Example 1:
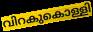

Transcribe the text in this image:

വിറകുകൊള്ളി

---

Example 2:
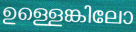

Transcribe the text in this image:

ഉള്ളെങ്കിലോ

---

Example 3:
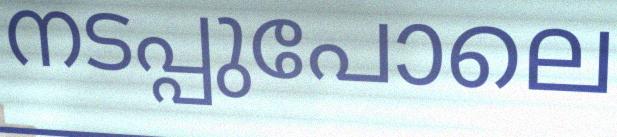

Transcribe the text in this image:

നടപ്പുപോലെ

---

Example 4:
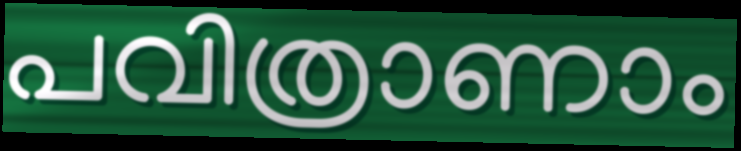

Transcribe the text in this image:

പവിത്രാണാം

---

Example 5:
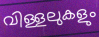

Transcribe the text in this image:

വിള്ളലുകളും